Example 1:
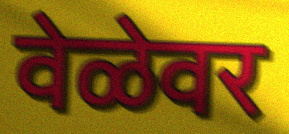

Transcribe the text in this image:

वेळेवर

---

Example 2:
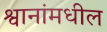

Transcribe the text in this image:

श्वानांमधील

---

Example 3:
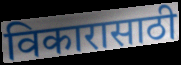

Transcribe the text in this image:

विकारासाठी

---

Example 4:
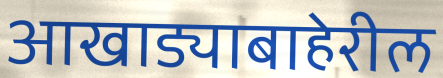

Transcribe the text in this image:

आखाड्याबाहेरील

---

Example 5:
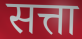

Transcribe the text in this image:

सत्ता